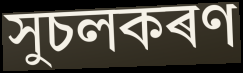
সুচলকৰণ